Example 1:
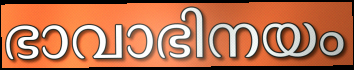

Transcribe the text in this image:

ഭാവാഭിനയം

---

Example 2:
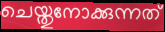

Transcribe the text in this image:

ചെയ്തുനോക്കുന്നത്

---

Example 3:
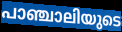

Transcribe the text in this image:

പാഞ്ചാലിയുടെ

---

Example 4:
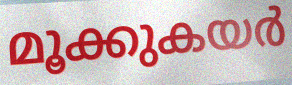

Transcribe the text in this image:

മൂക്കുകയർ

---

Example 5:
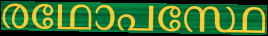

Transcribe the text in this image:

രഥോപസ്ഥേ